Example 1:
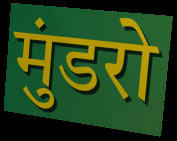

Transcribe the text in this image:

मुंडरो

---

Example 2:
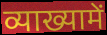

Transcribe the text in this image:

व्याख्यामें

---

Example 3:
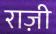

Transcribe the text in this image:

राज़ी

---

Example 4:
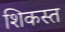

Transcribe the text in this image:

शिकस्त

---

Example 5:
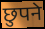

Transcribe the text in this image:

छुपने